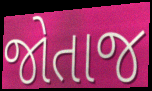
જોતાજ